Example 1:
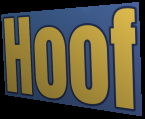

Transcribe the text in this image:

Hoof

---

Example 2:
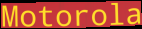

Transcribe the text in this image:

Motorola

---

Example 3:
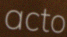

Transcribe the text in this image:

acto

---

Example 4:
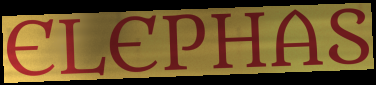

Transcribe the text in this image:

ELEPHAS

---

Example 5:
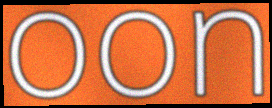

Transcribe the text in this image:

oon